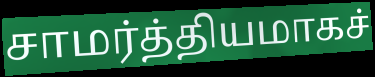
சாமர்த்தியமாகச்